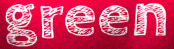
green